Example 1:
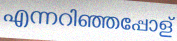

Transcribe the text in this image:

എന്നറിഞ്ഞപ്പോള്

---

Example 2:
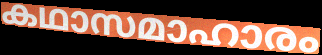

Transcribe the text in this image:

കഥാസമാഹാരം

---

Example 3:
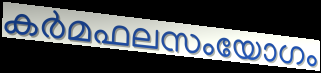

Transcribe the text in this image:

കർമഫലസംയോഗം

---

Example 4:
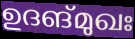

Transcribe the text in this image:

ഉദങ്മുഖഃ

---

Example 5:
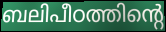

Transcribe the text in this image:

ബലിപീഠത്തിന്റെ